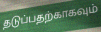
தடுப்பதற்காகவும்